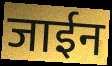
जाईन